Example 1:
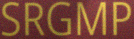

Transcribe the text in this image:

SRGMP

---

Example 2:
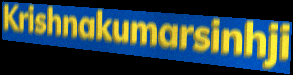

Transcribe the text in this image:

Krishnakumarsinhji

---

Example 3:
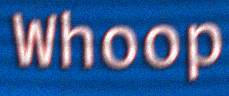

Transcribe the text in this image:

Whoop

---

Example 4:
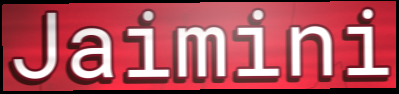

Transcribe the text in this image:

Jaimini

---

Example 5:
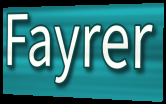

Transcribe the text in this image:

Fayrer